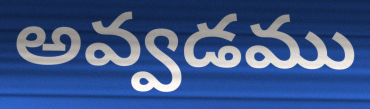
అవ్వడము